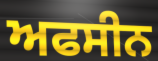
ਅਫਸੀਨ